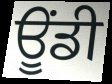
ਊਂਡੀ